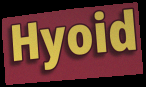
Hyoid